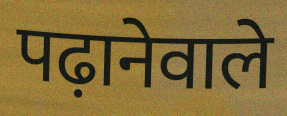
पढ़ानेवाले